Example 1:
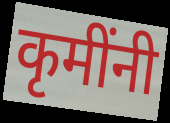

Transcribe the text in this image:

कृमींनी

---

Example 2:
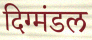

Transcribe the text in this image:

दिग्मंडल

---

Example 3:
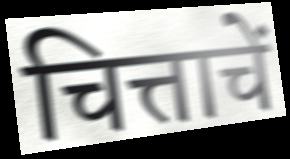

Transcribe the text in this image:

चित्ताचें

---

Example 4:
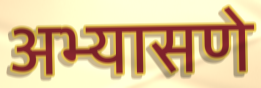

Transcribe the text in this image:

अभ्यासणे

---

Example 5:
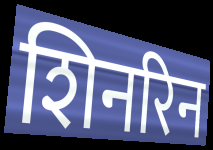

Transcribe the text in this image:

शिनरिन